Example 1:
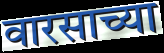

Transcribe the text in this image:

वारसाच्या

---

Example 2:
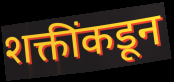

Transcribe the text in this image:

शक्तींकडून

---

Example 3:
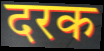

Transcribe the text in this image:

दरक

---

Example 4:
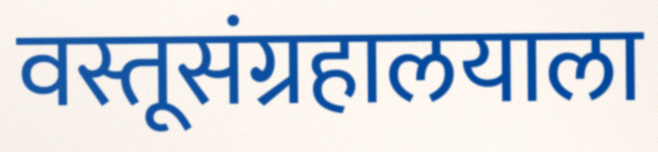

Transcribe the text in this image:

वस्तूसंग्रहालयाला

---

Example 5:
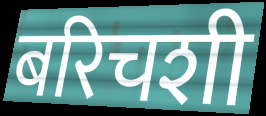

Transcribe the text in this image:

बरिचशी